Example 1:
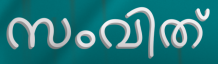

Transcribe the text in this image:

സംവിത്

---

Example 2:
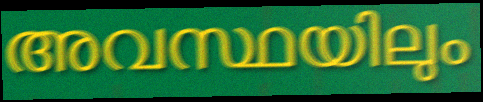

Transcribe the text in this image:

അവസ്ഥയിലും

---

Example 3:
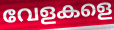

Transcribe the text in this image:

വേളകളെ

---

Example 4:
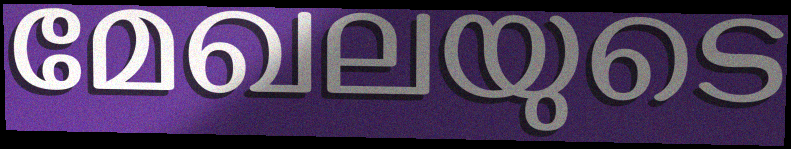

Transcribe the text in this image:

മേഖലയുടെ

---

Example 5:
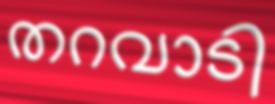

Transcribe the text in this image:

തറവാടി